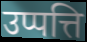
उप्पत्ति